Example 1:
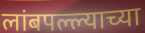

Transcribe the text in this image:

लांबपल्ल्याच्या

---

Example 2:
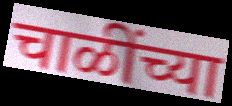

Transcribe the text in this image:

चाळींच्या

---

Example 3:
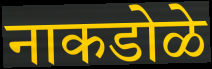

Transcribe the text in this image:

नाकडोळे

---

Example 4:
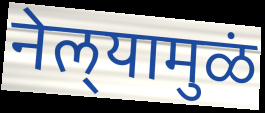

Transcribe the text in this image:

नेल्यामुळं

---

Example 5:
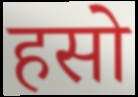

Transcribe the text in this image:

हसो